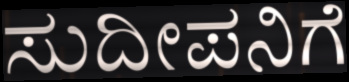
ಸುದೀಪನಿಗೆ